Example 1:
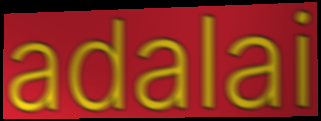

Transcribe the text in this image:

adalai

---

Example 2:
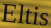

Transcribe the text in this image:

Eltis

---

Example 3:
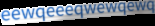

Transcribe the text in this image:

eewqeeeqwewqewq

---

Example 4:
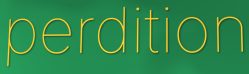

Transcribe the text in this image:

perdition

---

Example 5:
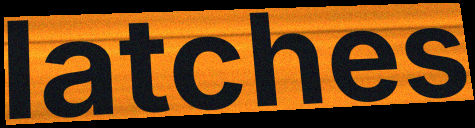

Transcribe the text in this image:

latches